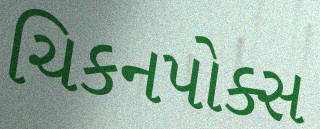
ચિકનપોક્સ